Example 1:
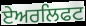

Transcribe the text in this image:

ਏਅਰਲਿਫਟ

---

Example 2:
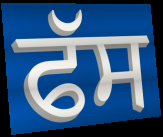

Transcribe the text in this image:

ਫੱਸ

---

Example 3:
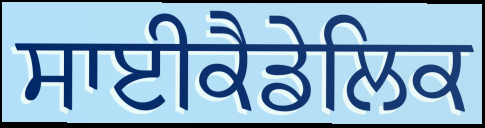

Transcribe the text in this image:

ਸਾਈਕੈਡੇਲਿਕ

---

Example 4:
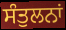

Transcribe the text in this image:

ਸੰਤੁਲਨਾਂ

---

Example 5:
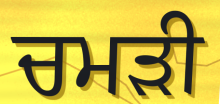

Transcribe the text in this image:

ਚਮਡ਼ੀ